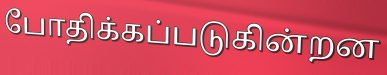
போதிக்கப்படுகின்றன